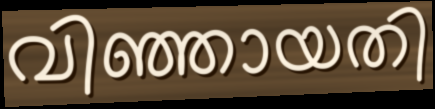
വിഞ്ഞായതി